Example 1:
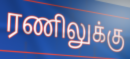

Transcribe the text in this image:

ரணிலுக்கு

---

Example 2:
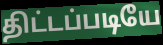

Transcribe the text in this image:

திட்டப்படியே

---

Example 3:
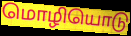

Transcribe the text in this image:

மொழியொடு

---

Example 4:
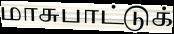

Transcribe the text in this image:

மாசுபாட்டுக்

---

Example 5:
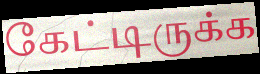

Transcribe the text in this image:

கேட்டிருக்க